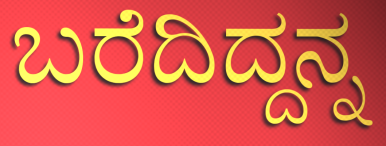
ಬರೆದಿದ್ದನ್ನ